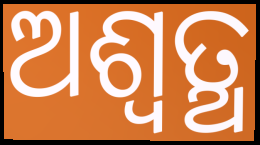
ଅଶ୍ଵତ୍ଥ